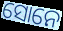
ସୋନେ